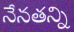
నేనతన్ని